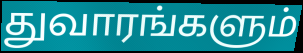
துவாரங்களும்